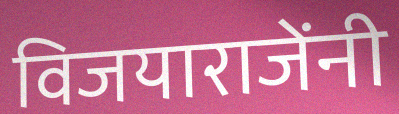
विजयाराजेंनी